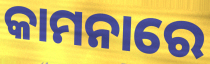
କାମନାରେ